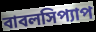
বাবলসিপ্যাপ